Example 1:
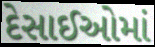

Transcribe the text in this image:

દેસાઈઓમાં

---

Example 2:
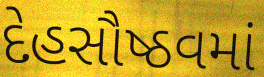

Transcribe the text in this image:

દેહસૌષ્ઠવમાં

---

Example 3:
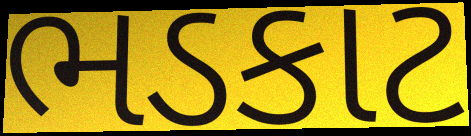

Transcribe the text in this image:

ભડકાટ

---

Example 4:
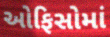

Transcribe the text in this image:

ઓફિસોમાં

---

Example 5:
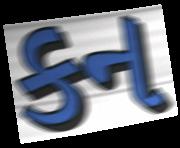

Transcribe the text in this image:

કન